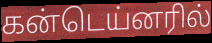
கன்டெய்னரில்